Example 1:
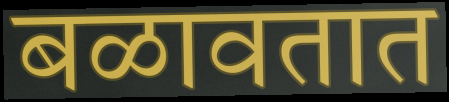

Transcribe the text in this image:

बळावतात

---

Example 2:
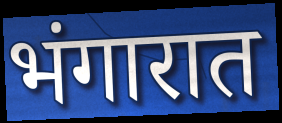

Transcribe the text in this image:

भंगारात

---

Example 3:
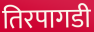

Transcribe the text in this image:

तिरपागडी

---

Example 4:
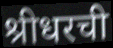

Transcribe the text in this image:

श्रीधरची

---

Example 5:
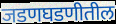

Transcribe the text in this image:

जडणघडणीतील